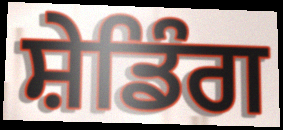
ਸ਼ੇਡਿੰਗ